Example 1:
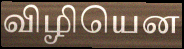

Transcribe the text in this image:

விழியென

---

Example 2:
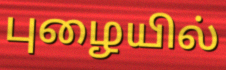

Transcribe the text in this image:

புழையில்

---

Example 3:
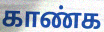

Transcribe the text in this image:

காண்க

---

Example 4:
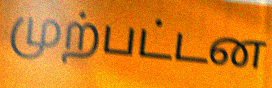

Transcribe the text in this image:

முற்பட்டன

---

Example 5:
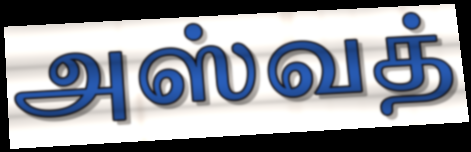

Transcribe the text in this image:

அஸ்வத்